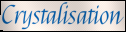
Crystalisation